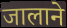
जालाने